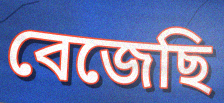
বেজেছি